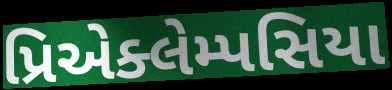
પ્રિએક્લેમ્પસિયા